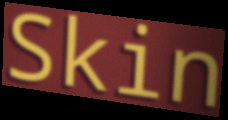
Skin